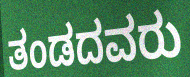
ತಂಡದವರು